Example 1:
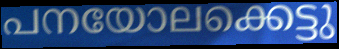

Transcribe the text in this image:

പനയോലക്കെട്ടു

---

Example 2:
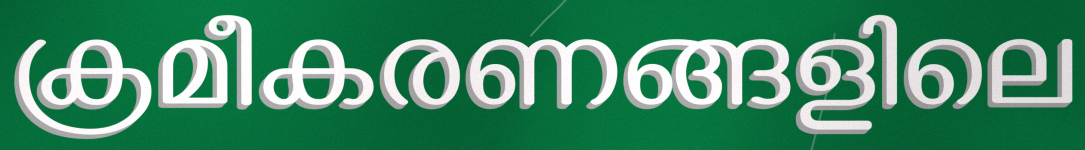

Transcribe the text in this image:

ക്രമീകരണങ്ങളിലെ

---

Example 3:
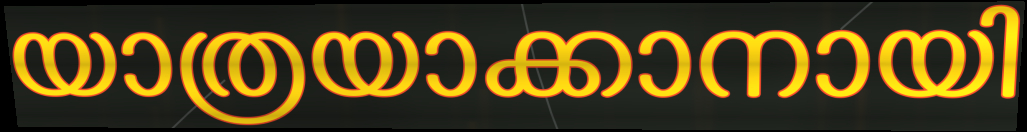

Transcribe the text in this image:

യാത്രയാക്കാനായി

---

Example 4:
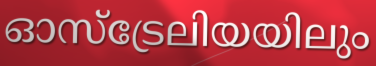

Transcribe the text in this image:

ഓസ്ട്രേലിയയിലും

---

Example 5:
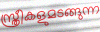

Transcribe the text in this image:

സ്ത്രീകളുമടങ്ങുന്ന